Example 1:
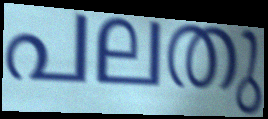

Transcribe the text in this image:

പലതു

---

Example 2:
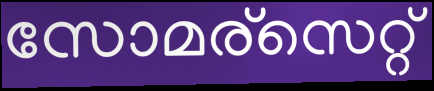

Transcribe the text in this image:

സോമര്സെറ്റ്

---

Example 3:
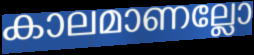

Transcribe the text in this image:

കാലമാണല്ലോ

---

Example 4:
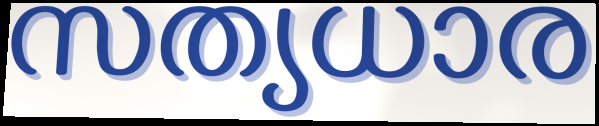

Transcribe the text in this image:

സത്യധാര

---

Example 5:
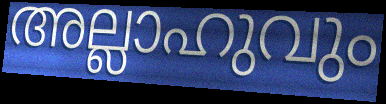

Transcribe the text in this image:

അല്ലാഹുവും